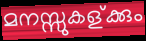
മനസ്സുകള്ക്കും